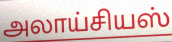
அலாய்சியஸ்